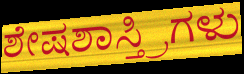
ಶೇಷಶಾಸ್ತ್ರಿಗಳು